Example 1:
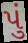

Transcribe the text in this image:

પું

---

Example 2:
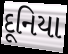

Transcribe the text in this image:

દૂનિયા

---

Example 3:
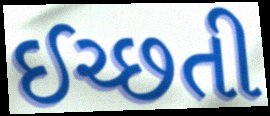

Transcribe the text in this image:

ઈચ્છતી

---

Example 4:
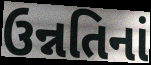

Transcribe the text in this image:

ઉન્નતિનાં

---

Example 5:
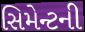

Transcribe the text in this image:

સિમેન્ટની